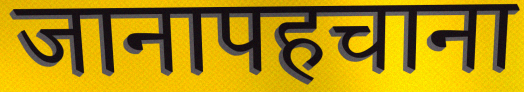
जानापहचाना